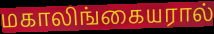
மகாலிங்கையரால்